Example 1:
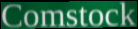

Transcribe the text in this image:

Comstock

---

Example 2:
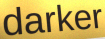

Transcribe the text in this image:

darker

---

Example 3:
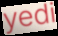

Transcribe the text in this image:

yedi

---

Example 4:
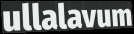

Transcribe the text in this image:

ullalavum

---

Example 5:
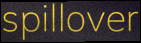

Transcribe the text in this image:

spillover